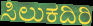
ಸಿಲುಕದಿರಿ